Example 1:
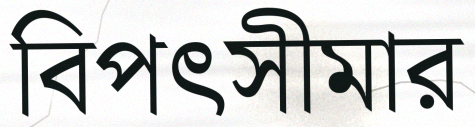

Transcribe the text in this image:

বিপৎসীমার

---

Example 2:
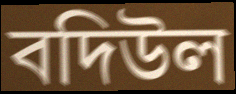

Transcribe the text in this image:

বদিউল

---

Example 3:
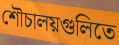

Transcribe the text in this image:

শৌচালয়গুলিতে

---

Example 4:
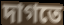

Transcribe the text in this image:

দাগতে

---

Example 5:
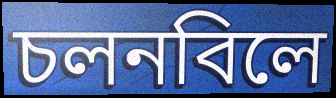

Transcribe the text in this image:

চলনবিলে